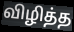
விழித்த